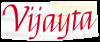
Vijayta